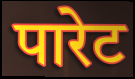
पारेट